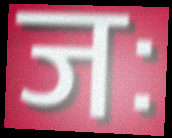
जः